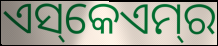
ଏସ୍‌କେଏମ୍‌ର